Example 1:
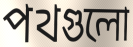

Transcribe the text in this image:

পথগুলো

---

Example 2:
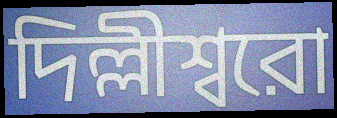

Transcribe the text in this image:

দিল্লীশ্বরো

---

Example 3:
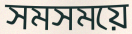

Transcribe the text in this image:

সমসময়ে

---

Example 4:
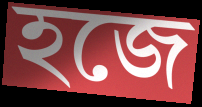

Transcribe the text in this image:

হজে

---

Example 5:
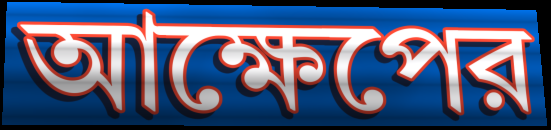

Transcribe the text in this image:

আক্ষেপের